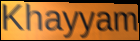
Khayyam